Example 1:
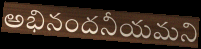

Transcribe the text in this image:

అభినందనీయమని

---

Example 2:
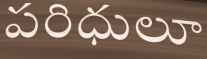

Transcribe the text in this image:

పరిధులూ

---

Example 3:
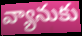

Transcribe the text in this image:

వ్యానుకు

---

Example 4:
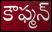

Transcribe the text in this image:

కౌఫ్మన్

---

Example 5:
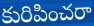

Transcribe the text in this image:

కురిపించరా